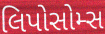
લિપોસોમ્સ